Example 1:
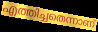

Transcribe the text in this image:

എത്തിച്ചതെന്നാണ്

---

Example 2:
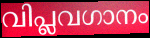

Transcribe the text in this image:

വിപ്ലവഗാനം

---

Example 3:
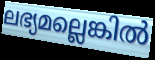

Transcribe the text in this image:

ലഭ്യമല്ലെങ്കിൽ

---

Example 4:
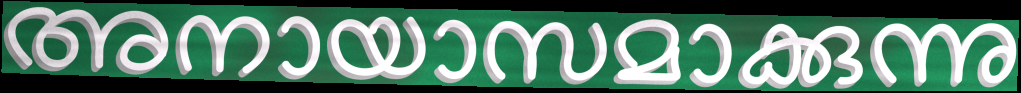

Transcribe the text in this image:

അനായാസമാക്കുന്നു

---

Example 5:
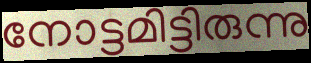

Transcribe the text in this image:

നോട്ടമിട്ടിരുന്നു